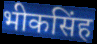
भीकसिंह